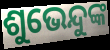
ଶୁଭେନ୍ଦୁଙ୍କ